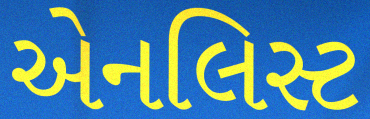
એનલિસ્ટ